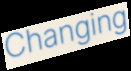
Changing